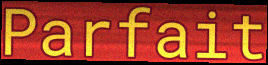
Parfait